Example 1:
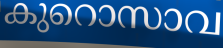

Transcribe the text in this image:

കുറൊസാവ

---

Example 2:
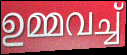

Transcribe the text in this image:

ഉമ്മവച്ച്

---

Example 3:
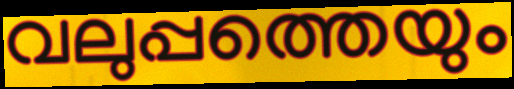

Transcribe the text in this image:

വലുപ്പത്തെയും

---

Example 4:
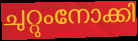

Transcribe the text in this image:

ചുറ്റുംനോക്കി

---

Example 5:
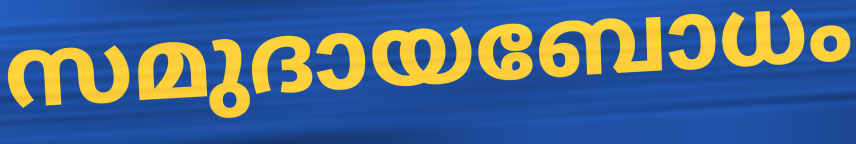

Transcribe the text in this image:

സമുദായബോധം